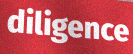
diligence